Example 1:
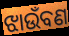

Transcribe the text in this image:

ଝାଉଁବଣ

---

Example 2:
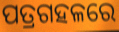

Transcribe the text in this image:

ପତ୍ରଗହଳରେ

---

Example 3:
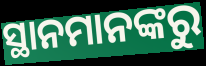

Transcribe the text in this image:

ସ୍ଥାନମାନଙ୍କରୁ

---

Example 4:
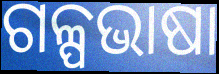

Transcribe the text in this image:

ଗଳ୍ପଭାଷା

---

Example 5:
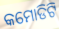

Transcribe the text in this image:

କମୋଡିଟି